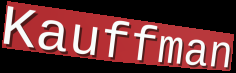
Kauffman